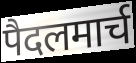
पैदलमार्च